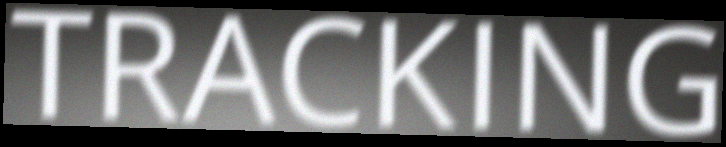
TRACKING